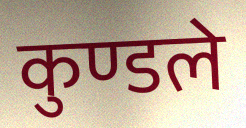
कुण्डले